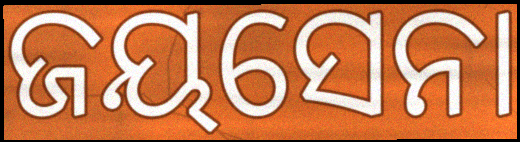
ଜୟସେନା